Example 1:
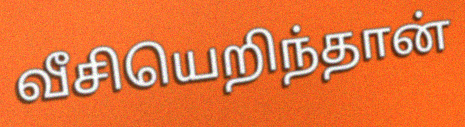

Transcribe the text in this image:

வீசியெறிந்தான்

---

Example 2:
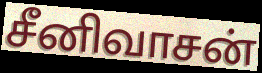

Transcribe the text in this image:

சீனிவாசன்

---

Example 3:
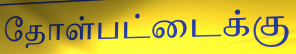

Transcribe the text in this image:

தோள்பட்டைக்கு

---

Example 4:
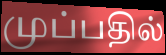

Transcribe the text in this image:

முப்பதில்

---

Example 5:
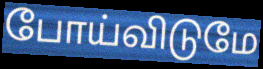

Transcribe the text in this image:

போய்விடுமே